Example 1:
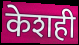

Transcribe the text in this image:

केशही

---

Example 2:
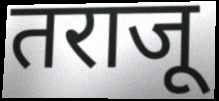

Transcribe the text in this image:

तराजू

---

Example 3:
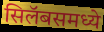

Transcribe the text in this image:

सिलॅबसमध्ये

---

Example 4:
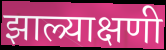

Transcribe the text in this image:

झाल्याक्षणी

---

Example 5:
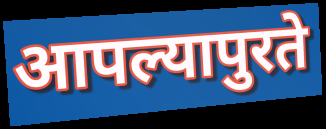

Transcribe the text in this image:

आपल्यापुरते